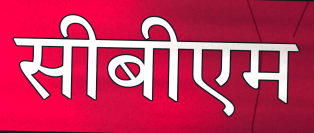
सीबीएम